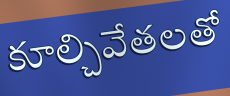
కూల్చివేతలతో